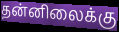
தன்னிலைக்கு